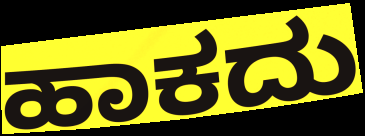
ಹಾಕದು